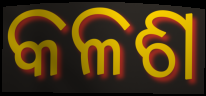
କଳଶ